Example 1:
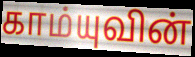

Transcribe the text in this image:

காம்யுவின்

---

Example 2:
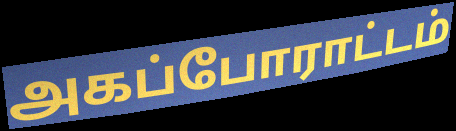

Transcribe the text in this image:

அகப்போராட்டம்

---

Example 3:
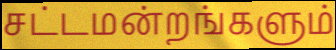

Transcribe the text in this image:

சட்டமன்றங்களும்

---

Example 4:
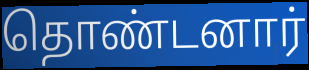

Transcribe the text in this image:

தொண்டனார்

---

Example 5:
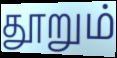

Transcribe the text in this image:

தூறும்